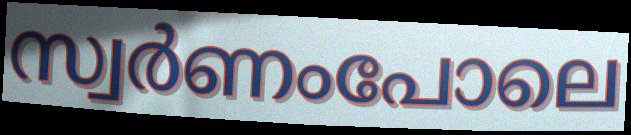
സ്വർണംപോലെ